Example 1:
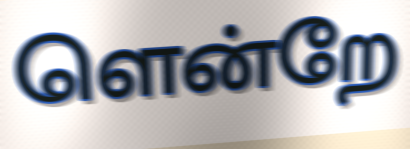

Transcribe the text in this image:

ளென்றே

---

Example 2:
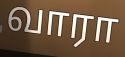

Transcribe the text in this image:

வாரா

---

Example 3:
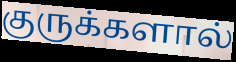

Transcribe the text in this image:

குருக்களால்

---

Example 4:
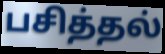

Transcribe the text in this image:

பசித்தல்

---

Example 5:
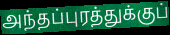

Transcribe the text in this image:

அந்தப்புரத்துக்குப்